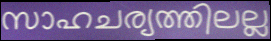
സാഹചര്യത്തിലല്ല